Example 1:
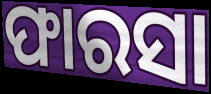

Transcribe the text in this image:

ଫାରସା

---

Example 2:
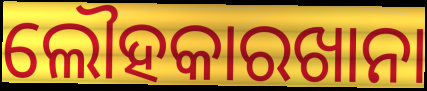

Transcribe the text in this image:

ଲୌହକାରଖାନା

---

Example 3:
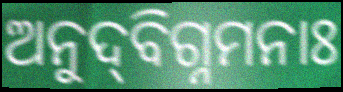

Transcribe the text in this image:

ଅନୁଦ୍‌ବିଗ୍ନମନାଃ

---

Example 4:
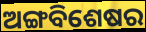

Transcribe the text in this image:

ଅଙ୍ଗବିଶେଷର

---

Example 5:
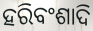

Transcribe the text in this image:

ହରିବଂଶାଦି